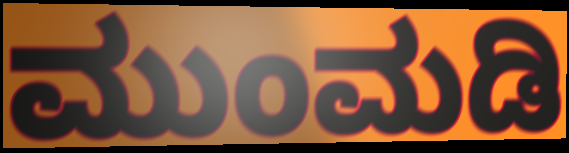
ಮುಂಮಡಿ